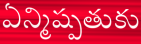
ఏన్మిష్పతుకు